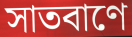
সাতবাণে